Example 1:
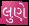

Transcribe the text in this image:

લુણે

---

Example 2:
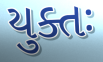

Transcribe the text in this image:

યુક્તઃ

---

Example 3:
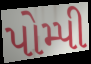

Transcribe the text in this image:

પોમ્પી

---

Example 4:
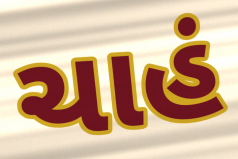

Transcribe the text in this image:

ચાહં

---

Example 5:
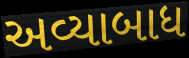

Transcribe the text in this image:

અવ્યાબાધ